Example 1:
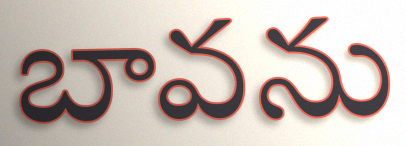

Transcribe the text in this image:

బావను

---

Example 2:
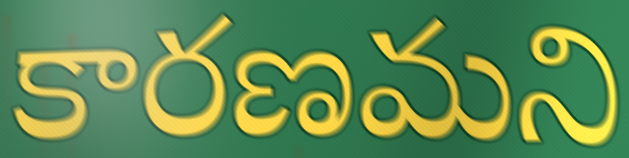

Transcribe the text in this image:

కారణమని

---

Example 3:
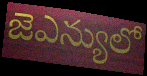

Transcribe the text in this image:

జెఎన్యులో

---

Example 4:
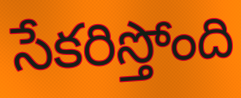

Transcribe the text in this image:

సేకరిస్తోంది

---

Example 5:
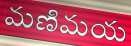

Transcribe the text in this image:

మణిమయ